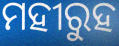
ମହୀରୁହ